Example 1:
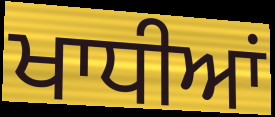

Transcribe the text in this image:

ਖਾਧੀਆਂ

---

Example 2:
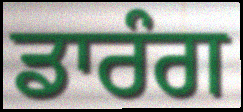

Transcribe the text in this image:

ਡਾਰੰਗ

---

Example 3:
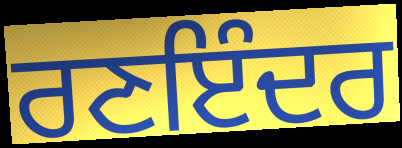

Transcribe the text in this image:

ਰਣਇੰਦਰ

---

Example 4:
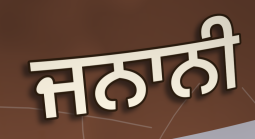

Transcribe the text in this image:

ਜਨਾਨੀ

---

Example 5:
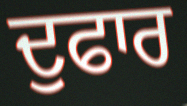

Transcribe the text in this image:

ਦੁਫਾਰ